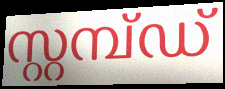
സ്റ്റമ്പ്ഡ്